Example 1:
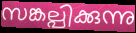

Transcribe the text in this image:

സങ്കല്പിക്കുന്നു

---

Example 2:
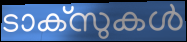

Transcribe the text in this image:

ടാക്സുകൾ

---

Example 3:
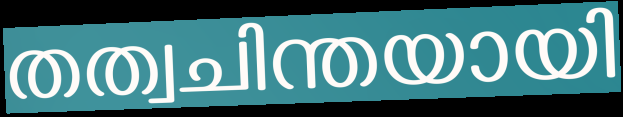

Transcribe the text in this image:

തത്വചിന്തയായി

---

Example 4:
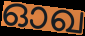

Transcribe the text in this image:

ഓഖ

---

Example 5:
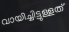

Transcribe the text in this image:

വായിച്ചിട്ടുള്ളത്